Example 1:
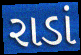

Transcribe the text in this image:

રાડાં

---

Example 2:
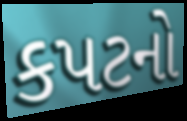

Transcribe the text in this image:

કપટનો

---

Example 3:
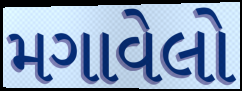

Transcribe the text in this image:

મગાવેલો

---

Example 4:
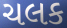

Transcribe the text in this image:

ચલક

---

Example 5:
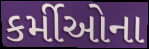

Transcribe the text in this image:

કર્મીઓના